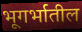
भूगर्भातील